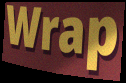
Wrap